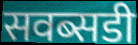
सवब्सडी